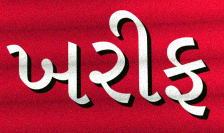
ખરીફ